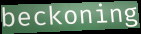
beckoning